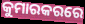
କୁମାରକରରେ